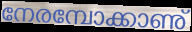
നേരമ്പോക്കാണു്